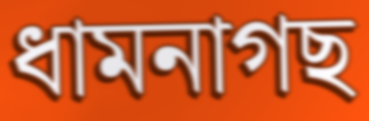
ধামনাগছ